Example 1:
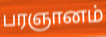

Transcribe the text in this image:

பரஞானம்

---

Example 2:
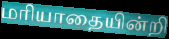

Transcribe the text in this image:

மரியாதையின்றி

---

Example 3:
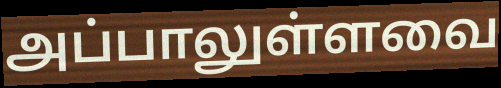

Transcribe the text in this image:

அப்பாலுள்ளவை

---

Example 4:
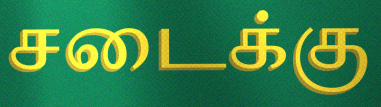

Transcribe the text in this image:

சடைக்கு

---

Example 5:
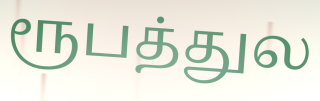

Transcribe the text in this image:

ரூபத்துல